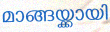
മാങ്ങയ്ക്കായി